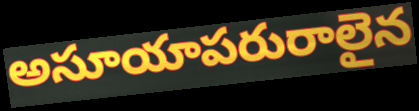
అసూయాపరురాలైన